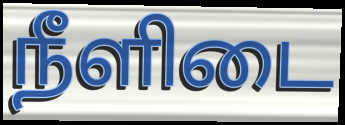
நீளிடை